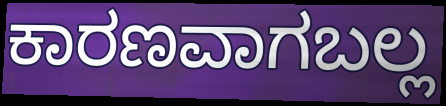
ಕಾರಣವಾಗಬಲ್ಲ